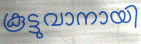
കൂട്ടുവാനായി